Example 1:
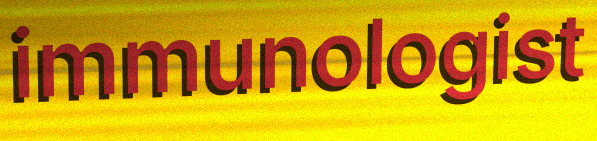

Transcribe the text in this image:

immunologist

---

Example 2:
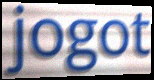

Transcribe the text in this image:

jogot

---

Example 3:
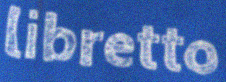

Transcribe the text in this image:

libretto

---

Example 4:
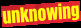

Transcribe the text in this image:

unknowing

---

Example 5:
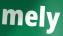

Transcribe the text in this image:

mely